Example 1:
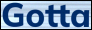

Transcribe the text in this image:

Gotta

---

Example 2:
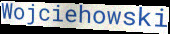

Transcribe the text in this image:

Wojciehowski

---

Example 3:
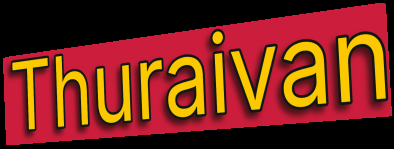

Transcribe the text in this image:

Thuraivan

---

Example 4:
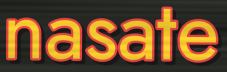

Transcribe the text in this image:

nasate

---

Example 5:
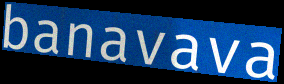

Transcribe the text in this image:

banavava